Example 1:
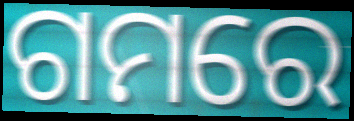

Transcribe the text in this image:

ଗମରେ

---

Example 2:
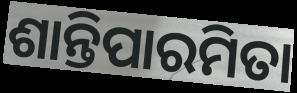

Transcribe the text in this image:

ଶାନ୍ତିପାରମିତା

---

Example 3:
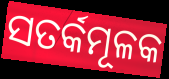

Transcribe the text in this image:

ସତର୍କମୂଳକ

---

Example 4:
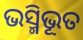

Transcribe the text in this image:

ଭସ୍ମିଭୂତ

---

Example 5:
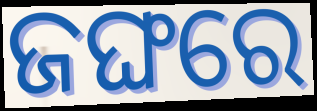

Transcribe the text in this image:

ଜଙ୍ଘରେ